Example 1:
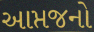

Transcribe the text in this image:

આપ્તજનો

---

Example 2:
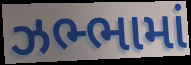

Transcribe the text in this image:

ઝભ્ભામાં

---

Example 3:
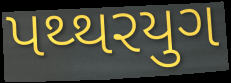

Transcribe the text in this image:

પથ્થરયુગ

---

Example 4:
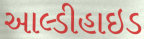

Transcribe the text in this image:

આલ્ડીહાઇડ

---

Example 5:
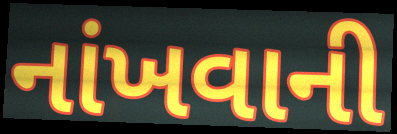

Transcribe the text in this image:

નાંખવાની